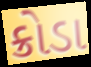
ક્રોડા